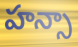
హన్సా